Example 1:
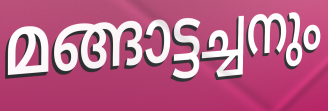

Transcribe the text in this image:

മങ്ങാട്ടച്ചനും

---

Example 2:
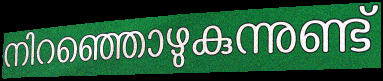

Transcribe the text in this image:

നിറഞ്ഞൊഴുകുന്നുണ്ട്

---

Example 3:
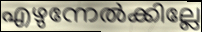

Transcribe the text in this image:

എഴുന്നേൽക്കില്ലേ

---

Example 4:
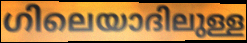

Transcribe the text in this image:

ഗിലെയാദിലുള്ള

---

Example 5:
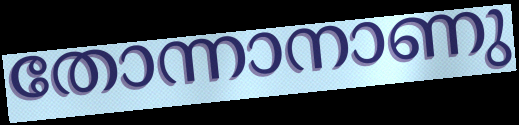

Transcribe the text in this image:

തോന്നാനാണു